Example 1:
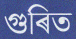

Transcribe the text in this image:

গুৰিত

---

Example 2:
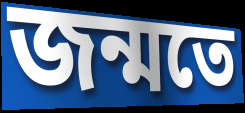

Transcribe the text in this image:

জন্মতে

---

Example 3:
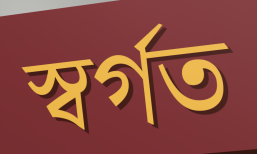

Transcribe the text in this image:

স্বৰ্গত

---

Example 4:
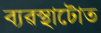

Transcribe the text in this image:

ব্যৱস্থাটোত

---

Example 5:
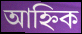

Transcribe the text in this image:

আহ্নিক